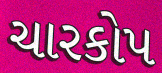
ચારકોપ